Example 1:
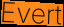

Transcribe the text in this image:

Evert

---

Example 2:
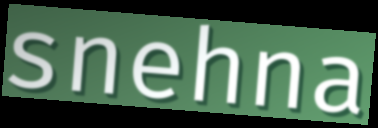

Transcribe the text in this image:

snehna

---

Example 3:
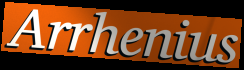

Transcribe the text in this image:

Arrhenius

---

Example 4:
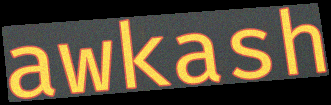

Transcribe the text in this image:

awkash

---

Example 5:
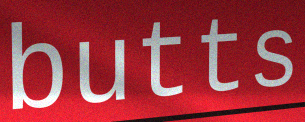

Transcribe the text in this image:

butts